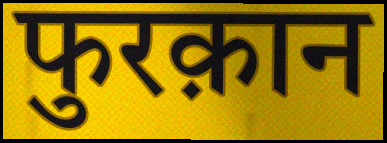
फुरक़ान